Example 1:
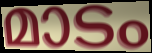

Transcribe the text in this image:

മാടം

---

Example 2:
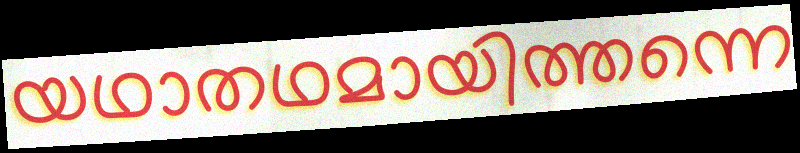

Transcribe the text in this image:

യഥാതഥമായിത്തന്നെ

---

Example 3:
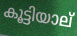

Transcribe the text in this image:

കൂട്ടിയാല്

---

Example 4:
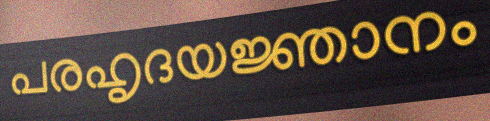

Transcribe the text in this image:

പരഹൃദയജ്ഞാനം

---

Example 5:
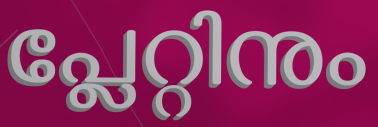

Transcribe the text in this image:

പ്ലേറ്റിനും